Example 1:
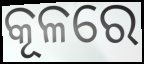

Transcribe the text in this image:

କୂଳରେ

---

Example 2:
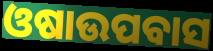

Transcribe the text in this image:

ଓଷାଉପବାସ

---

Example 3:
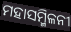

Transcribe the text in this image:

ମହାସମ୍ମିଳନୀ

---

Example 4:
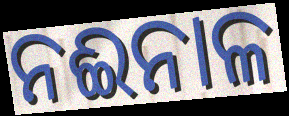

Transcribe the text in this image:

ନଈନାଳ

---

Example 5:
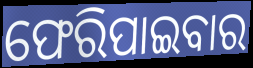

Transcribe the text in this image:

ଫେରିପାଇବାର